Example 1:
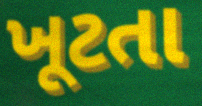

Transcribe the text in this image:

ખૂટતા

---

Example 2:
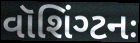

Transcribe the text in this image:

વૉશિંગ્ટનઃ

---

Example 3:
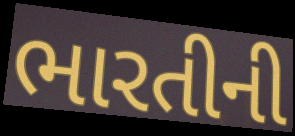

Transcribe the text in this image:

ભારતીની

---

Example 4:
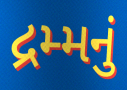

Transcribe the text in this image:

દ્રમ્મનું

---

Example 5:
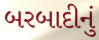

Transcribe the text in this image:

બરબાદીનું